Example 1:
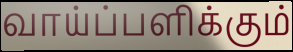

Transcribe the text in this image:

வாய்ப்பளிக்கும்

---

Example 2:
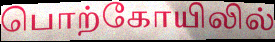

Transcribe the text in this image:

பொற்கோயிலில்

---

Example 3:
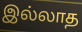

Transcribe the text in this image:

இல்லாத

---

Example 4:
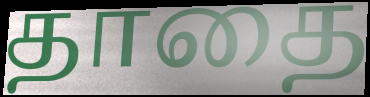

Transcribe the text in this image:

தாதை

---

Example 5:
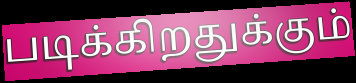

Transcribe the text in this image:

படிக்கிறதுக்கும்